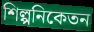
শিল্পনিকেতন